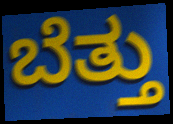
ಬೆತ್ತು